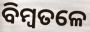
ବିମ୍ବତଳେ